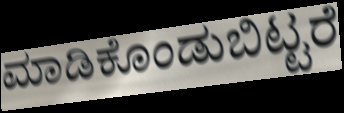
ಮಾಡಿಕೊಂಡುಬಿಟ್ಟರೆ